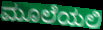
ಮೂಲೆಯಲಿ